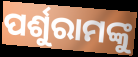
ପର୍ଶୁରାମଙ୍କୁ